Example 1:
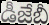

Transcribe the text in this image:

డీజేబీ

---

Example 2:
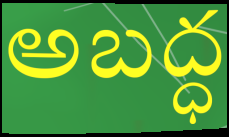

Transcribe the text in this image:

అబద్ధ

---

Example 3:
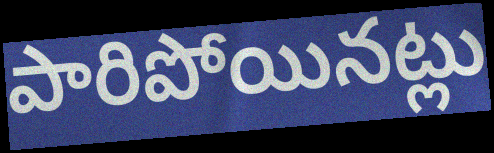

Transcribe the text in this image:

పారిపోయినట్లు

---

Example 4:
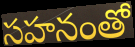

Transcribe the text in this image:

సహనంతో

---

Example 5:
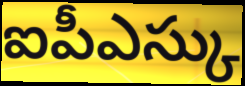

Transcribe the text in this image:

ఐపీఎస్కు